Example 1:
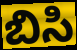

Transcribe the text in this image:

బిసి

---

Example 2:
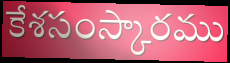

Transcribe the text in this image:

కేశసంస్కారము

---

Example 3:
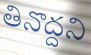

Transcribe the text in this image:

తినొద్దని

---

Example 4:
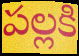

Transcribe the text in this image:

పల్లకి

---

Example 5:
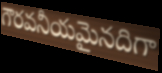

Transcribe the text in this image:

గౌరవనీయమైనదిగా